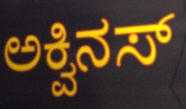
ಅಕ್ವಿನಸ್